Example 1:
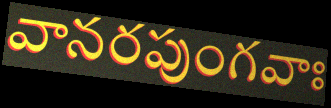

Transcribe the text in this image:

వానరపుంగవాః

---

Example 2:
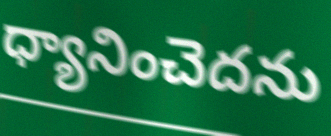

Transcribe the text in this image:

ధ్యానించెదను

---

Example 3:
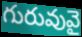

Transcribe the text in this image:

గురువువై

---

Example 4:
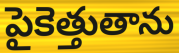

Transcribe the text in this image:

పైకెత్తుతాను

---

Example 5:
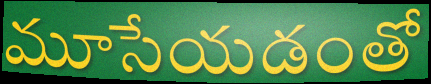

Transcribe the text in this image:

మూసేయడంతో